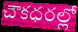
చౌకధరల్లో